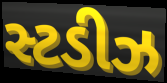
સ્ટડીઝ